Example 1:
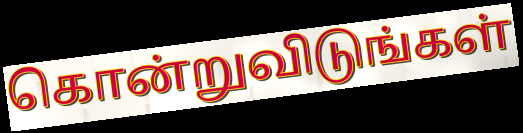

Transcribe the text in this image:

கொன்றுவிடுங்கள்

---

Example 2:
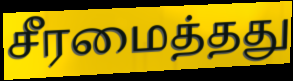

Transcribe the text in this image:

சீரமைத்தது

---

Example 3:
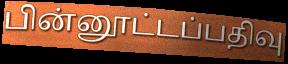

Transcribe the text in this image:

பின்னூட்டப்பதிவு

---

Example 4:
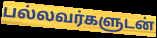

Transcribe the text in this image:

பல்லவர்களுடன்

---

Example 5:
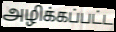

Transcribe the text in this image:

அழிக்கப்பட்ட